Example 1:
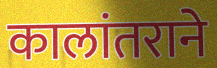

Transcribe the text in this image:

कालांतराने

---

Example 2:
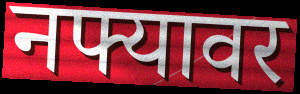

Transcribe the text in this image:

नफ्यावर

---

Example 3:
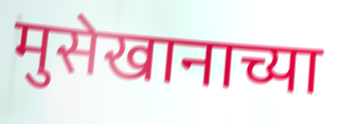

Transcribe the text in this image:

मुसेखानाच्या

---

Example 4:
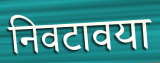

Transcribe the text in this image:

निवटावया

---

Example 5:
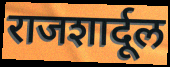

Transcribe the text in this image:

राजशार्दूल